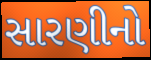
સારણીનો